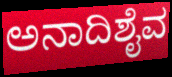
ಅನಾದಿಶೈವ